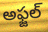
అఫ్జల్